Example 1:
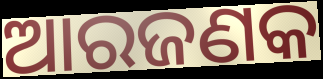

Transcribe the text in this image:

ଆରଜଣକ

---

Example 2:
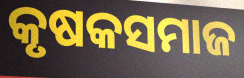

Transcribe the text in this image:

କୃଷକସମାଜ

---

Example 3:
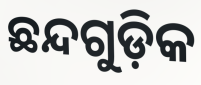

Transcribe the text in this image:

ଛନ୍ଦଗୁଡ଼ିକ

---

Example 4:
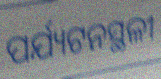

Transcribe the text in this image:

ପର୍ଯ୍ୟଟନସ୍ଥଳୀ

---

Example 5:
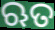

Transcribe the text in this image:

ଋତ